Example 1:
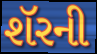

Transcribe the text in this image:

શૅરની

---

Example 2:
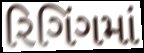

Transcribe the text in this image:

રિગિંગમાં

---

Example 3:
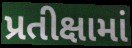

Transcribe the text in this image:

પ્રતીક્ષામાં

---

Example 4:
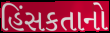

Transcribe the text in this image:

હિંસકતાનો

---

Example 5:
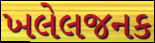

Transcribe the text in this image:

ખલેલજનક